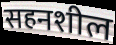
सहनशील